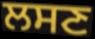
ਲਸਣ